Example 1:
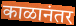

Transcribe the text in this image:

काळानंतर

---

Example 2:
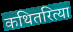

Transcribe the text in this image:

कथितरित्या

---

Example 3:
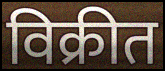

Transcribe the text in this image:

विक्रीत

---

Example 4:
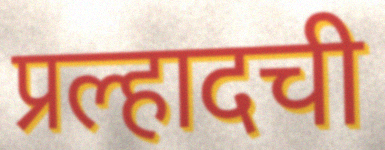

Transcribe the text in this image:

प्रल्हादची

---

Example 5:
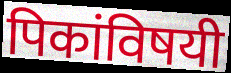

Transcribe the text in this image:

पिकांविषयी